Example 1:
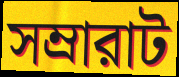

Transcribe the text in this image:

সম্রারাট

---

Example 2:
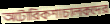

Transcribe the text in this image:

অটোরিকশাচালকদের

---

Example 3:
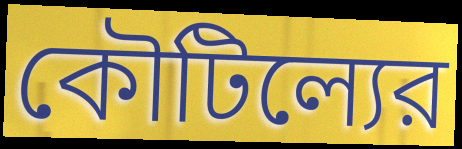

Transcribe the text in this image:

কৌটিল্যের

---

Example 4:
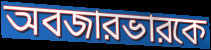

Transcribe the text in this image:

অবজারভারকে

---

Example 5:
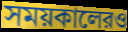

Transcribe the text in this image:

সময়কালেরও